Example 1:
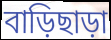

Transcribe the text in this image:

বাড়িছাড়া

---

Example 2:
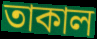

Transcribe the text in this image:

তাকাল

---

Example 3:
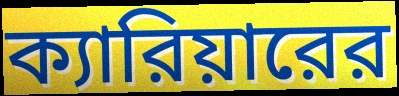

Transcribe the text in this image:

ক্যারিয়ারের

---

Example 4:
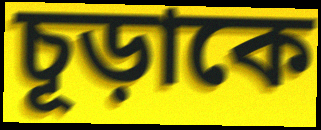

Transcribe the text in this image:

চূড়াকে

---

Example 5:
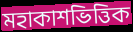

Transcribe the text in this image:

মহাকাশভিত্তিক